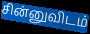
சின்னுவிடம்